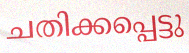
ചതിക്കപ്പെട്ടു